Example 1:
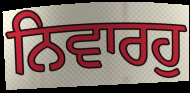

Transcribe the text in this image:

ਨਿਵਾਰਹੁ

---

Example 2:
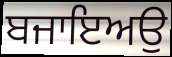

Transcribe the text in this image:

ਬਜਾਇਅਉ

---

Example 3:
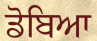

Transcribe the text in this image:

ਡੋਬਿਆ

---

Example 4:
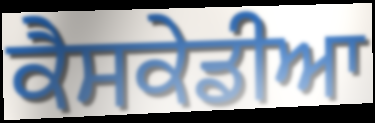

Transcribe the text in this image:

ਕੈਸਕੇਡੀਆ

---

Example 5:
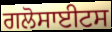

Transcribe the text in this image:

ਗਲੋਸਾਈਟਸ